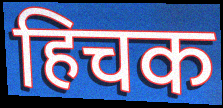
हिचक